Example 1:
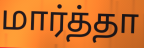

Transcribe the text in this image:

மார்த்தா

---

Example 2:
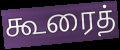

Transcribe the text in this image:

கூரைத்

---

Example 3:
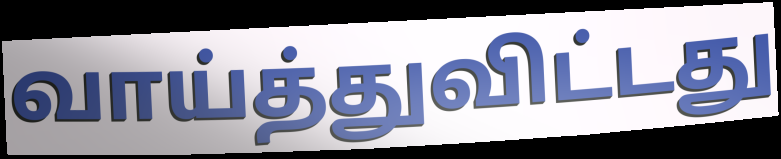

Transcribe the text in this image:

வாய்த்துவிட்டது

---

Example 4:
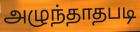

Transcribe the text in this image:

அழுந்தாதபடி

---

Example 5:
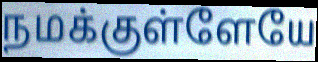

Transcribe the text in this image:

நமக்குள்ளேயே